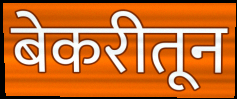
बेकरीतून